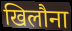
खिलौना